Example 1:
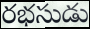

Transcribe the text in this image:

రభసుడు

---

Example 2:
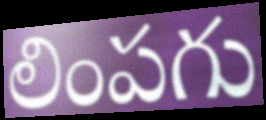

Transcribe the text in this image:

లింపగు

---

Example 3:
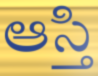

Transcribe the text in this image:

ఆస్తి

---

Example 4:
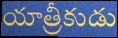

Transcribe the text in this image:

యాత్రీకుడు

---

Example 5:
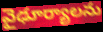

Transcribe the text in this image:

వైఢూర్యాలను